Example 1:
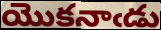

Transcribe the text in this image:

యొకనాఁడు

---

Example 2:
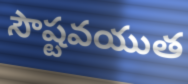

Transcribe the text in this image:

సౌష్టవయుత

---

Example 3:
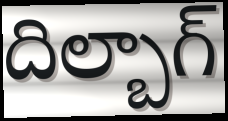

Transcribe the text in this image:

దిల్బాగ్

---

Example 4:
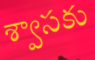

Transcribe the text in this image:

శ్వాసకు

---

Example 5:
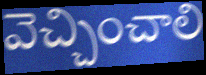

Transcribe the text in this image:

వెచ్చించాలి